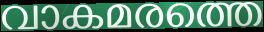
വാകമരത്തെ